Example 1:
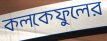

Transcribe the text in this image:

কলকেফুলের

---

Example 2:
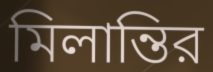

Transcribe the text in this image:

মিলান্তির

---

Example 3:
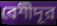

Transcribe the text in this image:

বেশীদূর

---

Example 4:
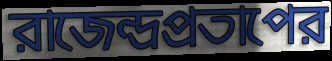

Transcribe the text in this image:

রাজেন্দ্রপ্রতাপের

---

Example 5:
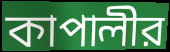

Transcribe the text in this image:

কাপালীর